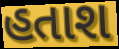
હતાશ